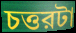
চত্তরটা